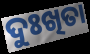
ଦୁଃଖିତା